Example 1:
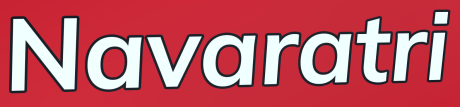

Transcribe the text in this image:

Navaratri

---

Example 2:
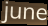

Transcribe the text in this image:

june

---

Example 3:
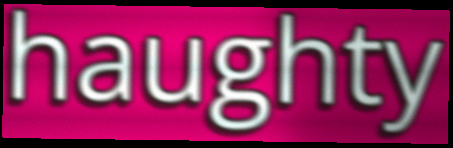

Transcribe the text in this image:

haughty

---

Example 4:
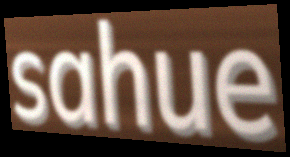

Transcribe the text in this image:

sahue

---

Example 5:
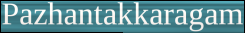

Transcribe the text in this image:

Pazhantakkaragam